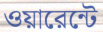
ওয়ারেন্টে